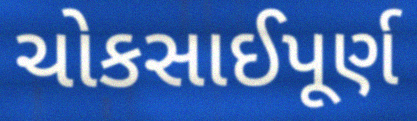
ચોકસાઈપૂર્ણ